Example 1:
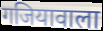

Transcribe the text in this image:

गजियावाला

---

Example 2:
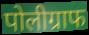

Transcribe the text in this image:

पोलीग्राफ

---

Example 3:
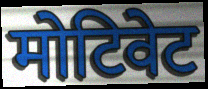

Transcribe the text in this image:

मोटिवेट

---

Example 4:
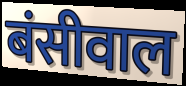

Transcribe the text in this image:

बंसीवाल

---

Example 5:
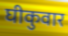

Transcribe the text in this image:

घीकुवार